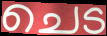
ചെട